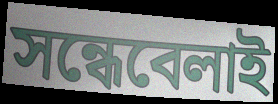
সন্ধেবেলাই